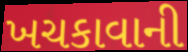
ખચકાવાની